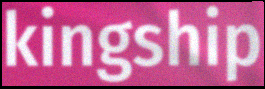
kingship